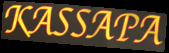
KASSAPA